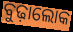
ବୁଢ଼ାଲୋକ